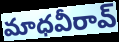
మాధవీరావ్